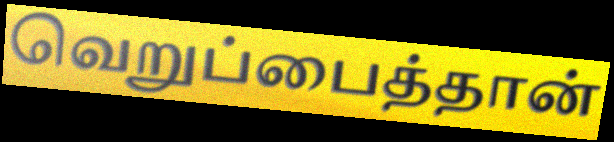
வெறுப்பைத்தான்